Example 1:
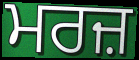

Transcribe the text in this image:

ਮਰਜ਼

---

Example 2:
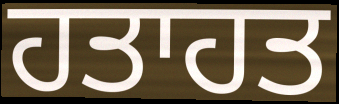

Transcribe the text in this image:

ਹਤਾਹਤ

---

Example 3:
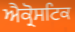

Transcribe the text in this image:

ਐਕ੍ਰੋਸਟਿਕ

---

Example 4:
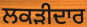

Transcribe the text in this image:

ਲਕੜੀਦਾਰ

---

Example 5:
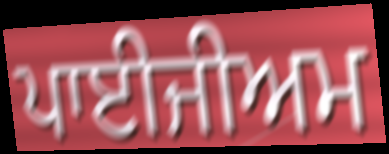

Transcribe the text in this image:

ਪਾਈਜੀਅਮ